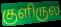
குளிருல